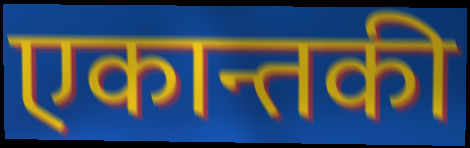
एकान्तकी